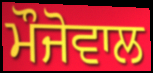
ਮੌਜੋਵਾਲ